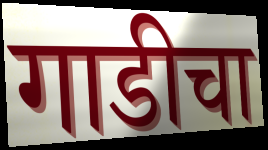
गाडीचा